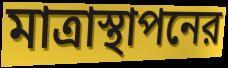
মাত্রাস্থাপনের